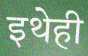
इथेही